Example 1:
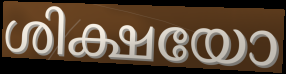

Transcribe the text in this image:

ശിക്ഷയോ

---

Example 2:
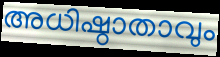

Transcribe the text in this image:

അധിഷ്ഠാതാവും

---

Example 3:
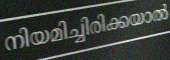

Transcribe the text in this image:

നിയമിച്ചിരിക്കയാൽ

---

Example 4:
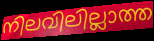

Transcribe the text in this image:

നിലവിലില്ലാത്ത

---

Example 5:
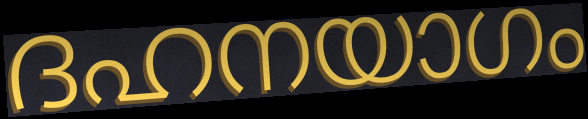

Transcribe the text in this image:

ദഹനയാഗം